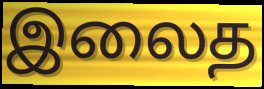
இலைத